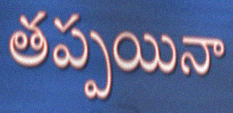
తప్పయినా